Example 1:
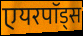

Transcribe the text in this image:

एयरपॉड्स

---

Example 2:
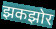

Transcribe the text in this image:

झकझोर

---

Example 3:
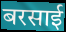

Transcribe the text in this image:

बरसाई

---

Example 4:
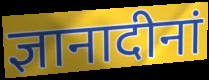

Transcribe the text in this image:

ज्ञानादीनां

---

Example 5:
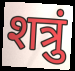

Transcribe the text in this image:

शत्रुं